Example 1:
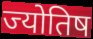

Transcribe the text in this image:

ज्योतिष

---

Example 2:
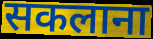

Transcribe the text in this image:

सकलाना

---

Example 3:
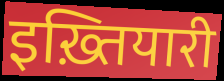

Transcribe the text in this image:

इख़्तियारी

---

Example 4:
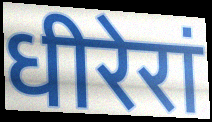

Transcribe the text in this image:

धीरेरां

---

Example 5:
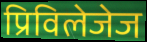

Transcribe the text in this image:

प्रिविलेजेज